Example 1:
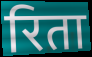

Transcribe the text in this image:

रिता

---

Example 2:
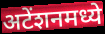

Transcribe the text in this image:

अटेंशनमध्ये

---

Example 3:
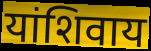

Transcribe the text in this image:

यांशिवाय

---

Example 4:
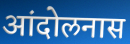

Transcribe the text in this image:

आंदोलनास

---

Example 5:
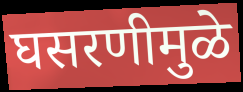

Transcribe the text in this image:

घसरणीमुळे